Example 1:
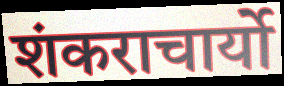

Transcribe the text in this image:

शंकराचार्यो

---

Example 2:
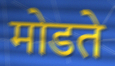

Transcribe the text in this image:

मोडते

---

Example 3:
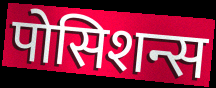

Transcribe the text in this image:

पोसिशन्स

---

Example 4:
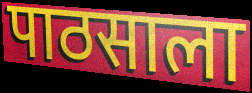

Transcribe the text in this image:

पाठसाला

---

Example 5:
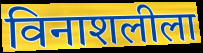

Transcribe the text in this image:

विनाशलीला